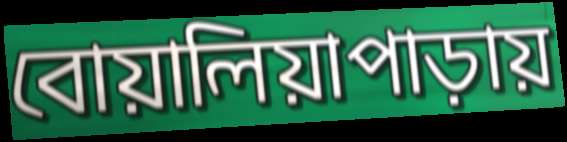
বোয়ালিয়াপাড়ায়